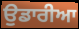
ਉਡਾਰੀਆ